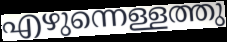
എഴുന്നെള്ളത്തു